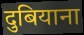
दुबियाना